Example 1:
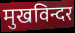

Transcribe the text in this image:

मुखविन्दर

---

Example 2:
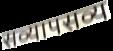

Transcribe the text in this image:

सव्यापसव्य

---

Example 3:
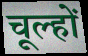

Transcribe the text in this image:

चूल्हों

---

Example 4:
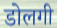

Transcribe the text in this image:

डोलगी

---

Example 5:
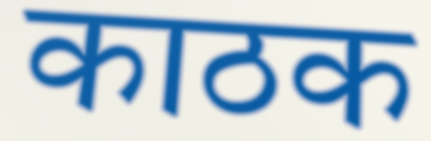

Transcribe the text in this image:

काठक